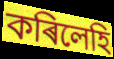
কৰিলেহি